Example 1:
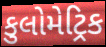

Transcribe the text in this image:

કુલોમેટ્રિક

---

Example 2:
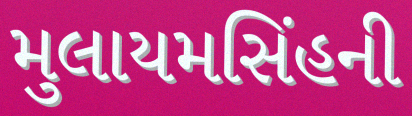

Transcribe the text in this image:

મુલાયમસિંહની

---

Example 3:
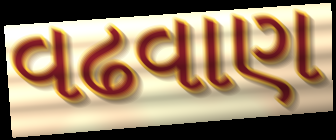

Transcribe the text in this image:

વઢવાણ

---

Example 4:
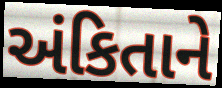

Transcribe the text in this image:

અંકિતાને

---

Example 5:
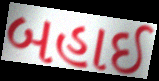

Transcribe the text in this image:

બહાઈ